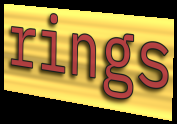
rings